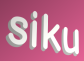
siku